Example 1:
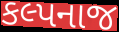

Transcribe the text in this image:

કલ્પનાજ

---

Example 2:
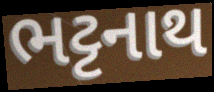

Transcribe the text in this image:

ભટ્ટનાથ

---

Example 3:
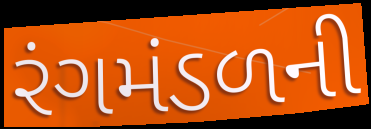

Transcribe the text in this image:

રંગમંડળની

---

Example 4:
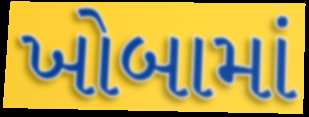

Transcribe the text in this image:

ખોબામાં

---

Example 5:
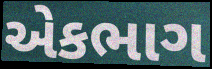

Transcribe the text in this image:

એકભાગ